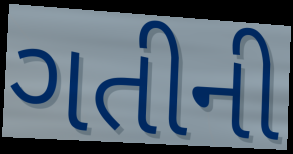
ગતીની